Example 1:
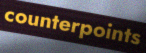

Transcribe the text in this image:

counterpoints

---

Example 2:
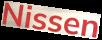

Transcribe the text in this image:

Nissen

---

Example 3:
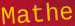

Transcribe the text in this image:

Mathe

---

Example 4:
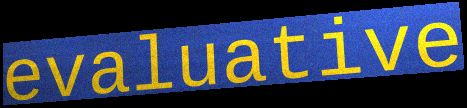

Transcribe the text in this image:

evaluative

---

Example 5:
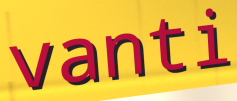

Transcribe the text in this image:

vanti